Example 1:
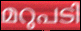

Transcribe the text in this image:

മറുപടി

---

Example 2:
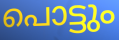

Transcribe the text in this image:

പൊട്ടും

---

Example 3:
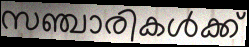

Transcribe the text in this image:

സഞ്ചാരികൾക്ക്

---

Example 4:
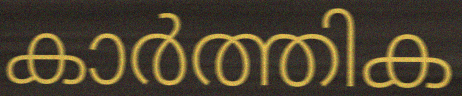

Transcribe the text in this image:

കാർത്തിക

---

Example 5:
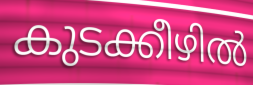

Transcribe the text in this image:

കുടക്കീഴിൽ